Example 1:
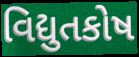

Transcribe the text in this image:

વિદ્યુતકોષ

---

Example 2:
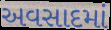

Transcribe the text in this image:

અવસાદમાં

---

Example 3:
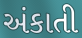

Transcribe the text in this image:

અંકાતી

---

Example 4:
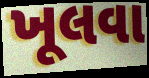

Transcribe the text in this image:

ખૂલવા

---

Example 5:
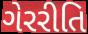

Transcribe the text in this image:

ગેરરીતિ